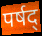
पर्षद्